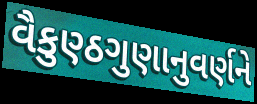
વૈકુણ્ઠગુણાનુવર્ણને